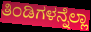
ತಿಂಡಿಗಳನ್ನೆಲ್ಲಾ